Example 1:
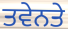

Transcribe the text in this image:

ਤਵੇਨਤੇ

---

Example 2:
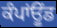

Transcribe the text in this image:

ਕੰਪਾਂਊਂਡ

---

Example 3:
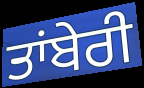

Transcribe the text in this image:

ਤਾਂਬੇਰੀ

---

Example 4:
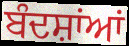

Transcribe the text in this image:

ਬੰਦਸ਼ਾਂਆਂ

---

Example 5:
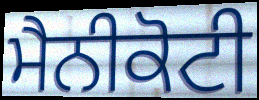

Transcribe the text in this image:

ਮੈਨੀਕੋਟੀ